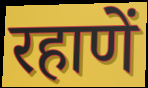
रहाणें